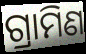
ଗ୍ରାମିଣ